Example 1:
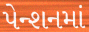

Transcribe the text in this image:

પેન્શનમાં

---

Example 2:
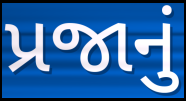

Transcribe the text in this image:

પ્રજાનું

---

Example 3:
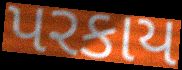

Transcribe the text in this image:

પરકાય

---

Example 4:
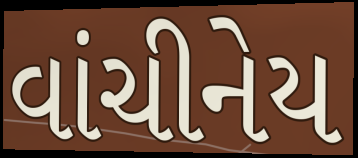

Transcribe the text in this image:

વાંચીનેય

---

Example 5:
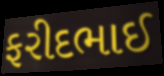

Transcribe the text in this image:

ફરીદભાઈ